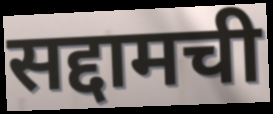
सद्दामची